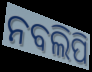
ନବଲିପି